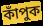
কাঁপুক